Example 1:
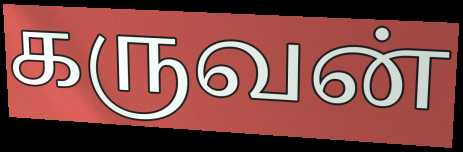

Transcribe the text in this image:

கருவன்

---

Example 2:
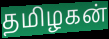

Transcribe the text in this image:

தமிழகன்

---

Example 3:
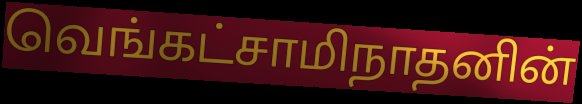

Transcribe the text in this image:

வெங்கட்சாமிநாதனின்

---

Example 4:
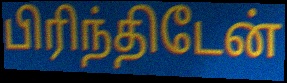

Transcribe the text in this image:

பிரிந்திடேன்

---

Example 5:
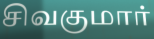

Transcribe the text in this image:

சிவகுமார்